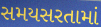
સમયસરતામાં